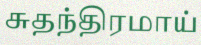
சுதந்திரமாய்